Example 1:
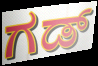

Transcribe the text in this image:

ಗಡ್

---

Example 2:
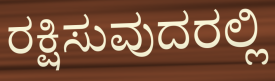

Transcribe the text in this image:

ರಕ್ಷಿಸುವುದರಲ್ಲಿ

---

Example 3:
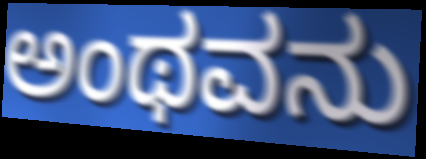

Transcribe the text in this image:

ಅಂಥವನು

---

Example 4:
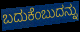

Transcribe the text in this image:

ಬದುಕೆಂಬುದನ್ನು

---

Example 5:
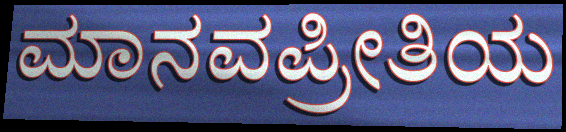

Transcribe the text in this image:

ಮಾನವಪ್ರೀತಿಯ